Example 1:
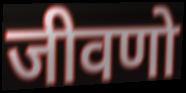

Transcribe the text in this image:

जीवणो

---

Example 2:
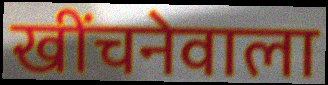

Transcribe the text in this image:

खींचनेवाला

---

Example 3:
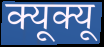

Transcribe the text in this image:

क्यूक्यू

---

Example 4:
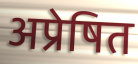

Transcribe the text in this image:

अप्रेषित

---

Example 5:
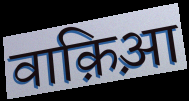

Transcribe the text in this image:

वाक़िआ़